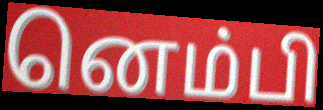
னெம்பி